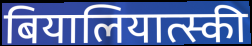
बियालियात्स्की